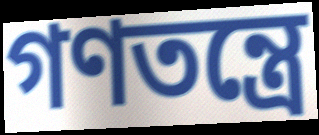
গণতন্ত্রে